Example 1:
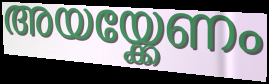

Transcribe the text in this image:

അയയ്ക്കേണം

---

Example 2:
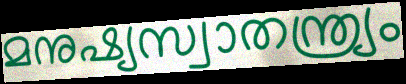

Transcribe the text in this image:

മനുഷ്യസ്വാതന്ത്ര്യം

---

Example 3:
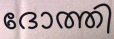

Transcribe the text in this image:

ദോത്തി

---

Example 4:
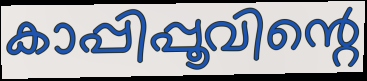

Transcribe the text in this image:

കാപ്പിപ്പൂവിന്റെ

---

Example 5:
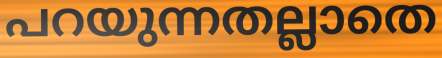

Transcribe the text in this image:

പറയുന്നതല്ലാതെ